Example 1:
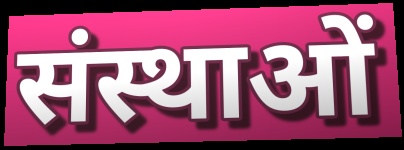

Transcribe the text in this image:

संस्थाओं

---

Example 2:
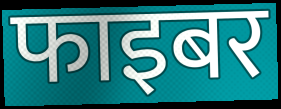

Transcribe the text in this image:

फाइबर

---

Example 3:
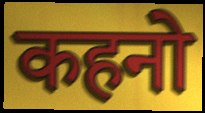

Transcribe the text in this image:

कहनो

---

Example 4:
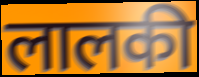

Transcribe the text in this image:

लालकी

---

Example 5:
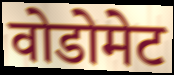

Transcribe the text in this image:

वोडोमेट